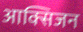
आक्सिजन